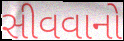
સીવવાનો